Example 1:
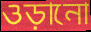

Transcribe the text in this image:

ওড়ানো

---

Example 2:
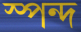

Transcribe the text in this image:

স্পন্দ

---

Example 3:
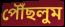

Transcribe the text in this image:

পৌঁছলুম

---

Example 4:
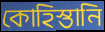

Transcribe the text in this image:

কোহিস্তানি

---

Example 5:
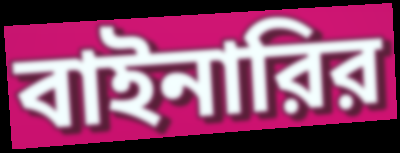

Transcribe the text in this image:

বাইনারির